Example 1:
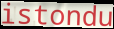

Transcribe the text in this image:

istondu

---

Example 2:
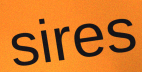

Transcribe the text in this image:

sires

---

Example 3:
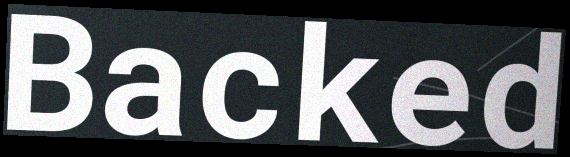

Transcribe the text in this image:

Backed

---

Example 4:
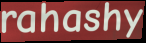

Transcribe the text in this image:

rahashy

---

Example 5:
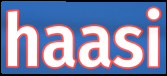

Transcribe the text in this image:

haasi